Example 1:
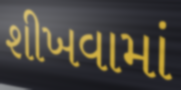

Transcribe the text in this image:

શીખવામાં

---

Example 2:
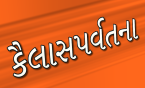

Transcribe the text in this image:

કૈલાસપર્વતના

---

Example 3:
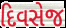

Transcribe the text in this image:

દિવસેજ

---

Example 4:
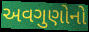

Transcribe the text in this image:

અવગુણોનો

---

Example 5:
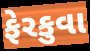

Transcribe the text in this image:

ફેરકુવા